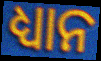
ଧ୍ୟାନ